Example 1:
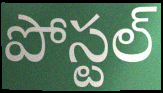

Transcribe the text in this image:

పోస్టల్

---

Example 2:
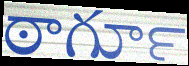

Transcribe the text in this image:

ఠాగూర్‍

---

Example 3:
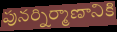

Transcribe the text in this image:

పునర్నిర్మాణానికి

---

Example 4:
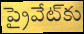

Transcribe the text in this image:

ప్రైవేట్‌కు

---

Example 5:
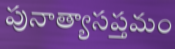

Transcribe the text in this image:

పునాత్యాసప్తమం